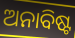
ଅନାବିଷ୍ଟ